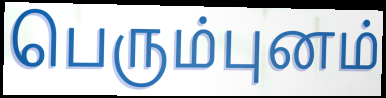
பெரும்புனம்